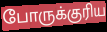
போருக்குரிய